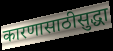
कारणासाठीसुद्धा